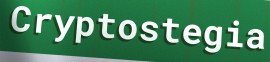
Cryptostegia